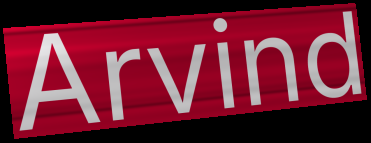
Arvind